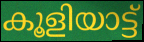
കൂളിയാട്ട്